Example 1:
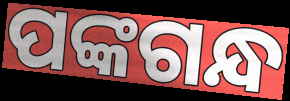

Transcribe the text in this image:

ପଙ୍କଗନ୍ଧ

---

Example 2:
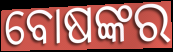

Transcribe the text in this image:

ବୋଷଙ୍କର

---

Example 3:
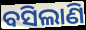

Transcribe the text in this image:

ବସିଲାଣି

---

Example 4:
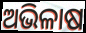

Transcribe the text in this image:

ଅଭିଳାଷ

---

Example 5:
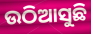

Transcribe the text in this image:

ଉଠିଆସୁଛି